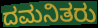
ದಮನಿತರು